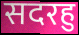
सदरहु